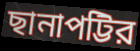
ছানাপট্টির